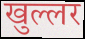
खुल्लर